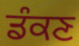
ਡੰਕਣ